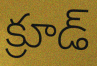
క్రూడ్